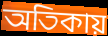
অতিকায়